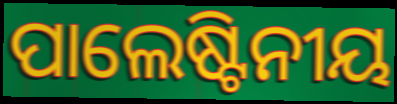
ପାଲେଷ୍ଟିନୀୟ